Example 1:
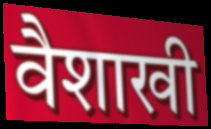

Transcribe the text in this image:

वैशाखी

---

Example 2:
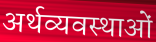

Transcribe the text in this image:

अर्थव्यवस्थाओं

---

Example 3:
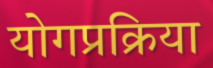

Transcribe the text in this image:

योगप्रक्रिया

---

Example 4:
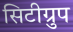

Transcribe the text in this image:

सिटीग्रुप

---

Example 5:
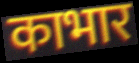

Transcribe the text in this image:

काभार